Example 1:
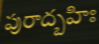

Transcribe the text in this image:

పురాద్బహిః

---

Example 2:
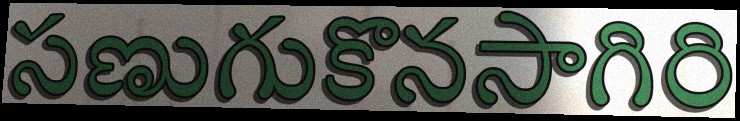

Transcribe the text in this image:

సణుగుకొనసాగిరి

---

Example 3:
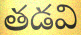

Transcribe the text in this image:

తడవి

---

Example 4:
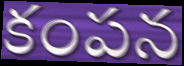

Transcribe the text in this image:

కంపన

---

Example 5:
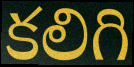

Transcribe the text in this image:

కలిగి